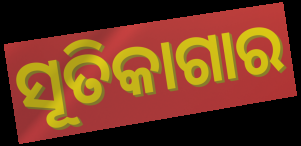
ସୂତିକାଗାର